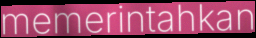
memerintahkan